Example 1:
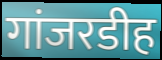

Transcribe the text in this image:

गांजरडीह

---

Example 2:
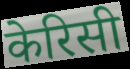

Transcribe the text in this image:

केरिसी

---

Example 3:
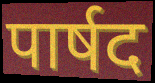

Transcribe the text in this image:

पार्षद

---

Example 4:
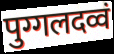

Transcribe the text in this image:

पुग्गलदव्वं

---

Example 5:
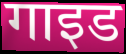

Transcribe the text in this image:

गाइड